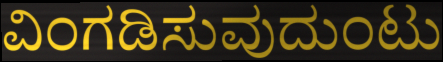
ವಿಂಗಡಿಸುವುದುಂಟು